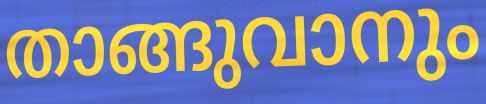
താങ്ങുവാനും